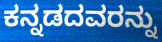
ಕನ್ನಡದವರನ್ನು